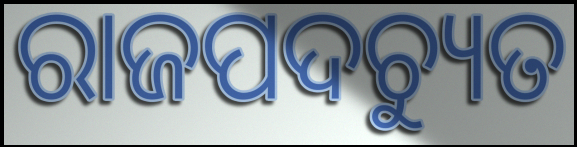
ରାଜପଦଚ୍ୟୁତ